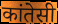
कांतेसी